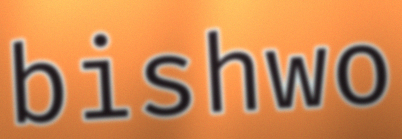
bishwo